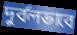
দুর্বলভাবে